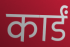
कार्डं